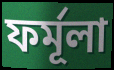
ফৰ্মূলা